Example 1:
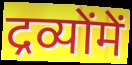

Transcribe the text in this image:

द्रव्योंमें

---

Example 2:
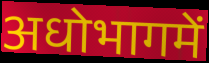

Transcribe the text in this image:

अधोभागमें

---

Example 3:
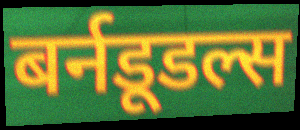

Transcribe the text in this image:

बर्नडूडल्स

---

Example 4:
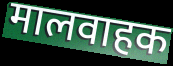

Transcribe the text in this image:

मालवाहक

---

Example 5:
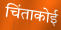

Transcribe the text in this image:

चिंताकोई